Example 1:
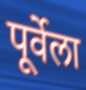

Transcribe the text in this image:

पूर्वेला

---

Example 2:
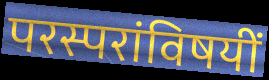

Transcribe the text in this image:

परस्परांविषयीं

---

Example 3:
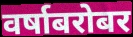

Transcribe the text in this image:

वर्षाबरोबर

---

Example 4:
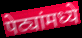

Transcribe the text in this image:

पेट्यांमध्ये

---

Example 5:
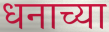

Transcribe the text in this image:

धनाच्या